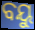
ବୟୁ